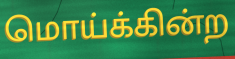
மொய்க்கின்ற